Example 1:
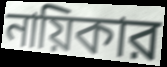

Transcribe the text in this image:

নায়িকার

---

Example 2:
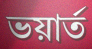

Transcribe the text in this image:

ভয়ার্ত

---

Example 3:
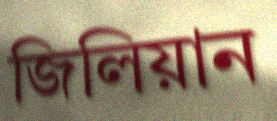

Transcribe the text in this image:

জিলিয়ান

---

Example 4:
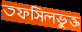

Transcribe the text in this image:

তফসিলভুক্ত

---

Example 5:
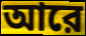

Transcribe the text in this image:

আরে